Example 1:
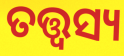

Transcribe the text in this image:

ତତ୍ତ୍ୱସ୍ୟ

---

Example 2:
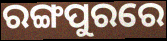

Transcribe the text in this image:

ରଙ୍ଗପୁରରେ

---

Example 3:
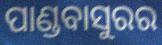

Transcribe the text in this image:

ପାଣ୍ଡବାସୁରର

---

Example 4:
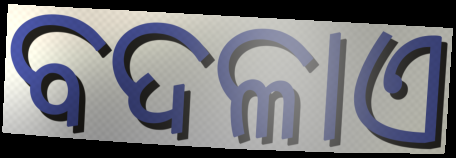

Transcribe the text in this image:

ବଦଳାଏ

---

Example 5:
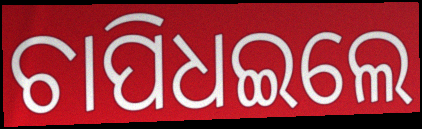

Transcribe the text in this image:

ଚାପିଧଇଲେ